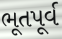
ભૂતપૂર્વ